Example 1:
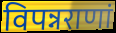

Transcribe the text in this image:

विपन्नराणां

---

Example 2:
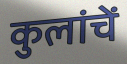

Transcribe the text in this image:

कुलांचें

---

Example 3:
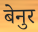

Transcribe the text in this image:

बेनुर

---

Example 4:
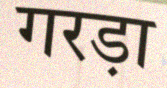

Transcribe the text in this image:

गरड़ा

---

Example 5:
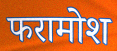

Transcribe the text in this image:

फरामोश